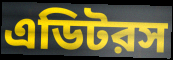
এডিটরস